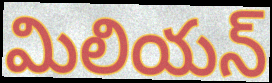
మిలియన్